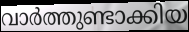
വാർത്തുണ്ടാക്കിയ